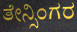
ತೇನ್ಸಿಂಗರ